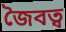
জৈবত্ব